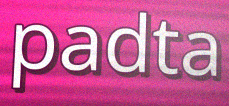
padta